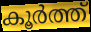
കൂർത്ത്